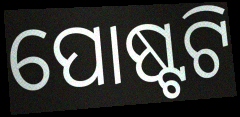
ପୋଷ୍ଟଟି